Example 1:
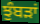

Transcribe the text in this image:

ਝੁੰਬੜਾਂ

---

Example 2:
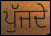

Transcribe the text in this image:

ਪੁੱਜਦੇ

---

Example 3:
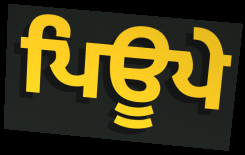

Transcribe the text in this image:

ਪਿਊਪੇ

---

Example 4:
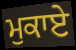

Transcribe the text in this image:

ਮੁਕਾਏ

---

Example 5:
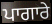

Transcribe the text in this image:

ਪਾਗਾਰੇ